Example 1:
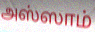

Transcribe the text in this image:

அஸ்ஸாம்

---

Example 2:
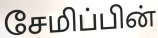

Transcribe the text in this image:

சேமிப்பின்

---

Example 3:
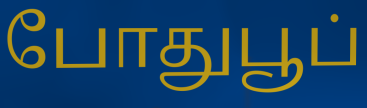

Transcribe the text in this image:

போதுபூப்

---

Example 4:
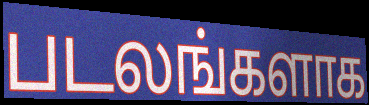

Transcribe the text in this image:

படலங்களாக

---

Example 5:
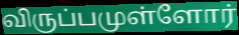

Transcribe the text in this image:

விருப்பமுள்ளோர்